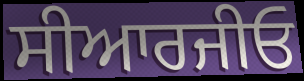
ਸੀਆਰਜੀਓ